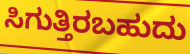
ಸಿಗುತ್ತಿರಬಹುದು